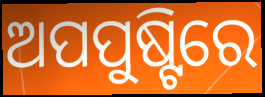
ଅପପୁଷ୍ଟିରେ